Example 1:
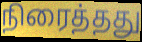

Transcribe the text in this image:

நிரைத்தது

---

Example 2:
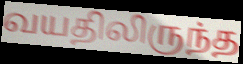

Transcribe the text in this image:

வயதிலிருந்த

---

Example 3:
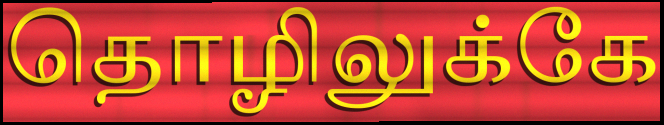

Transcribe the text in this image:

தொழிலுக்கே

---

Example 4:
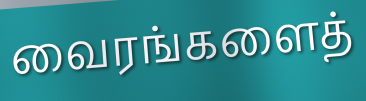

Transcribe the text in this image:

வைரங்களைத்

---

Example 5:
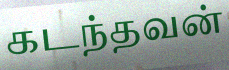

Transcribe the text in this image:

கடந்தவன்